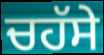
ਚਹੱਸੇ